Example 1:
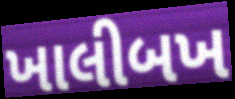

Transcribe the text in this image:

ખાલીબખ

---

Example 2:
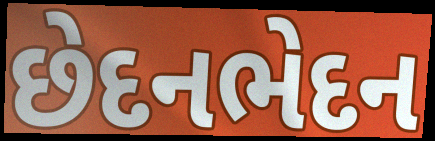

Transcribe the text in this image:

છેદનભેદન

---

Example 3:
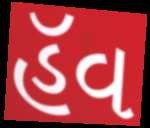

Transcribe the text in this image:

હૅવ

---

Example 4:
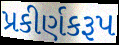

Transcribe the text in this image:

પ્રકીર્ણકરૂપ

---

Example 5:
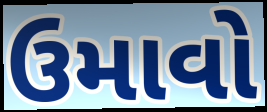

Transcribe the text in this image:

ઉમાવો